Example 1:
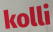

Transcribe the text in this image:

kolli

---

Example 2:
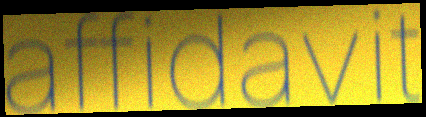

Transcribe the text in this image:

affidavit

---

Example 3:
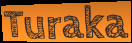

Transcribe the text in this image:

Turaka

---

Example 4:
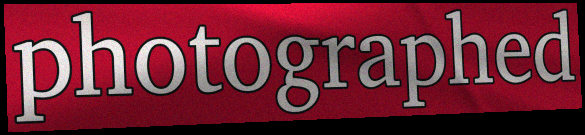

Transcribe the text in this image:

photographed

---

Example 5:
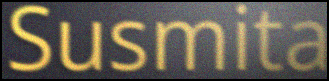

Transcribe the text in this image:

Susmita